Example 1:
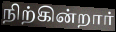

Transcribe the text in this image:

நிற்கின்றார்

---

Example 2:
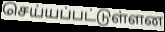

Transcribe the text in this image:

செய்யப்பட்டுள்ளன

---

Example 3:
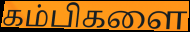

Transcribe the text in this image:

கம்பிகளை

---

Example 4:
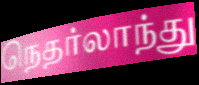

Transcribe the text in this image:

நெதர்லாந்து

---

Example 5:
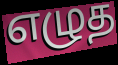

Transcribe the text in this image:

எழுத